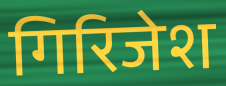
गिरिजेश